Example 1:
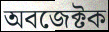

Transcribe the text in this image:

অবজেক্টক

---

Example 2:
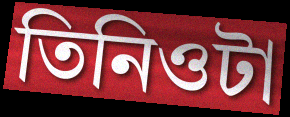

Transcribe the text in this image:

তিনিওটা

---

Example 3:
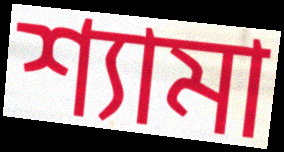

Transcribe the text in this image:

শ্যামা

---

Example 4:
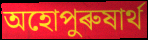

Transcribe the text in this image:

অহোপুৰুষাৰ্থ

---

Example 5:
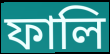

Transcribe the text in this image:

ফালি